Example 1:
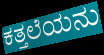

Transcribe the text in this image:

ಕತ್ತಲೆಯನು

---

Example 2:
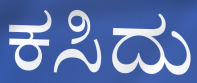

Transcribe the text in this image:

ಕಸಿದು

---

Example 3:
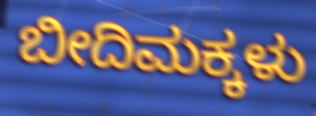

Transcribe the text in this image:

ಬೀದಿಮಕ್ಕಳು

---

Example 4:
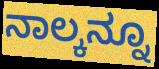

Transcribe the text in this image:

ನಾಲ್ಕನ್ನೂ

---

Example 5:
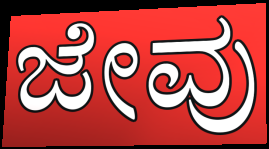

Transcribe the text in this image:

ಜೇವು